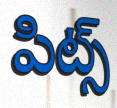
పిట్స్